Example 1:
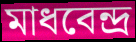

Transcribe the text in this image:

মাধবেন্দ্র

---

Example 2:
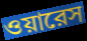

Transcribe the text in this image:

ওয়ারেস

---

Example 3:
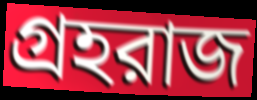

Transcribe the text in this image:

গ্রহরাজ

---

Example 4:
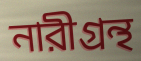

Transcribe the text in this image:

নারীগ্রন্থ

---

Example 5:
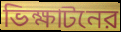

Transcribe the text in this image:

ভিক্ষাটনের